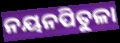
ନୟନପିତୁଳା